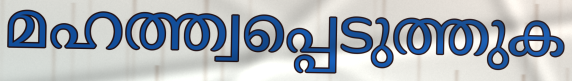
മഹത്ത്വപ്പെടുത്തുക